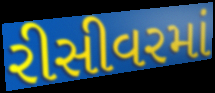
રીસીવરમાં